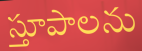
స్తూపాలను